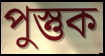
পুস্তুক